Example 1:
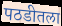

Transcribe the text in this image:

पठडीतला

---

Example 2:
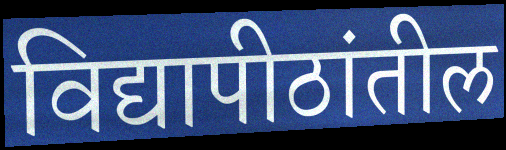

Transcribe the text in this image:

विद्यापीठांतील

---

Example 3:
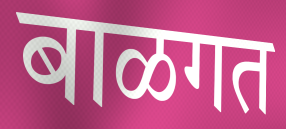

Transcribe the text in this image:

बाळगत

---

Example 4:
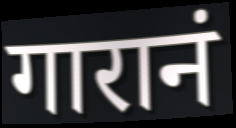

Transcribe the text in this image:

गारानं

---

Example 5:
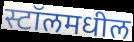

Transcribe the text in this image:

स्टॉलमधील